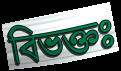
বিভক্তঃ